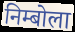
निम्बोला